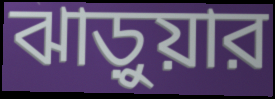
ঝাড়ুয়ার